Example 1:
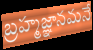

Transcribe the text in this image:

బ్రహ్మజ్ఞానమనే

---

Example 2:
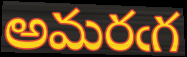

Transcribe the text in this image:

అమరఁగ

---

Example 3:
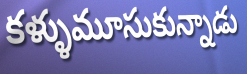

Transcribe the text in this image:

కళ్ళుమూసుకున్నాడు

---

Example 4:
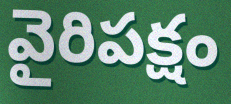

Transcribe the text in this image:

వైరిపక్షం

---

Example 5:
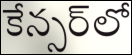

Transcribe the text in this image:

కేన్సర్‌లో